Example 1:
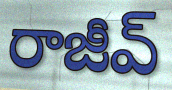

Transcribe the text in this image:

రాజీవ్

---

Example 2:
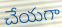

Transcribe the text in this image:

చేయగా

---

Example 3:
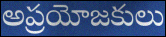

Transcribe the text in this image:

అప్రయోజకులు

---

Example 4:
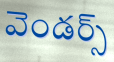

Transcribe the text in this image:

వెండర్స్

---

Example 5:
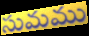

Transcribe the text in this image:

సుమము